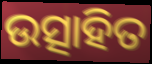
ଉତ୍ସାହିତ